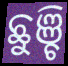
ଛୁଞ୍ଚି